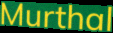
Murthal